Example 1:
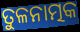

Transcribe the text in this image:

ତୁଳନାତ୍ମକ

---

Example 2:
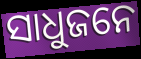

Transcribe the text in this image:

ସାଧୁଜନେ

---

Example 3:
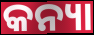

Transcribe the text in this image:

କନ୍ୟା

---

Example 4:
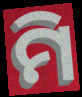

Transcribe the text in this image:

ମି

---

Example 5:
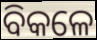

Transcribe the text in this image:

ବିକଳେ